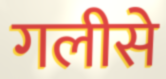
गलीसे